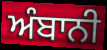
ਅੰਬਾਨੀ